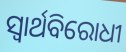
ସ୍ବାର୍ଥବିରୋଧୀ